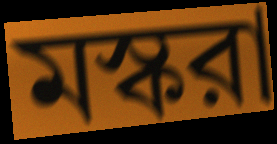
মস্করা